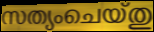
സത്യംചെയ്തു